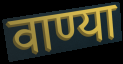
वाण्या